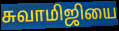
சுவாமிஜியை